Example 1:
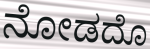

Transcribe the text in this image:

ನೋಡದೊ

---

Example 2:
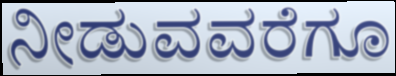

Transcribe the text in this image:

ನೀಡುವವರೆಗೂ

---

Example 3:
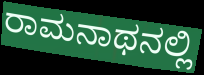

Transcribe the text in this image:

ರಾಮನಾಥನಲ್ಲಿ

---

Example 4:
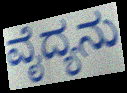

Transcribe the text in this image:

ವೈದ್ಯನು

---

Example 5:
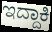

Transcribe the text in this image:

ಇದ್ದಾಕಿ